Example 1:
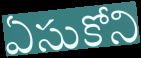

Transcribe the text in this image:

ఏసుకోని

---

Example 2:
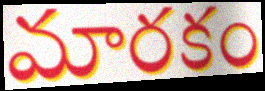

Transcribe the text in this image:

మారకం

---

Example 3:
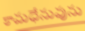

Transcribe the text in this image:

కామధేనువును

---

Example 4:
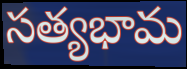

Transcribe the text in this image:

సత్యభామ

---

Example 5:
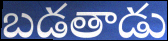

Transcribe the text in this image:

బడతాడు